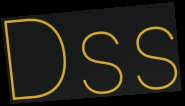
Dss